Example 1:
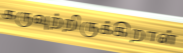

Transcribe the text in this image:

கருவுற்றிருக்கிறாள்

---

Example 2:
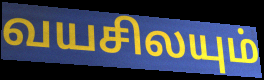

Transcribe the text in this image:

வயசிலயும்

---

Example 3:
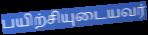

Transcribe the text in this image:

பயிற்சியுடையவர்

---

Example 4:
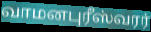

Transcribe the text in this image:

வாமனபுரீஸ்வரர்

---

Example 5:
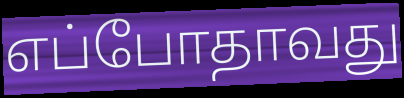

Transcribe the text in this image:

எப்போதாவது